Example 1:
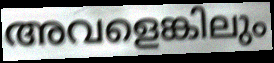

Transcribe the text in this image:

അവളെങ്കിലും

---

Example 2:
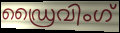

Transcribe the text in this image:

ഡ്രൈവിംഗ്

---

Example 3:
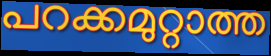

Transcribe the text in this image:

പറക്കമുറ്റാത്ത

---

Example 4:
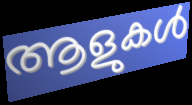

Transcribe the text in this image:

ആളുകൾ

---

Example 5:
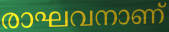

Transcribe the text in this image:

രാഘവനാണ്